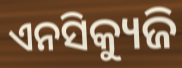
ଏନସିକ୍ୟୁଜି